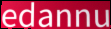
edannu